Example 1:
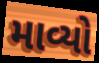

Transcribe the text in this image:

માવ્યો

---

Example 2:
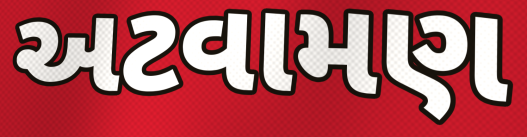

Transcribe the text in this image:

અટવામણ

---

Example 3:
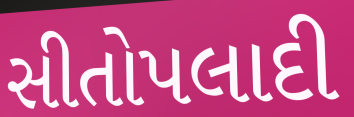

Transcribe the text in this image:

સીતોપલાદી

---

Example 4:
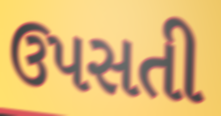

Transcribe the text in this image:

ઉપસતી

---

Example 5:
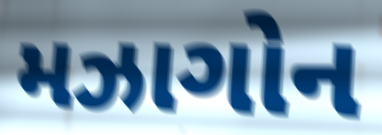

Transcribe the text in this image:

મઝાગોન